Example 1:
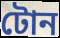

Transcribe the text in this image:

টোন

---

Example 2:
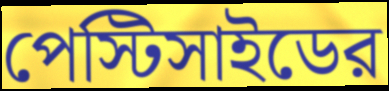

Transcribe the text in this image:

পেস্টিসাইডের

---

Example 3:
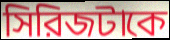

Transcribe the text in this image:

সিরিজটাকে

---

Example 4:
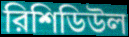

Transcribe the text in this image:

রিশিডিউল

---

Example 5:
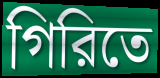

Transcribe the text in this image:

গিরিতে